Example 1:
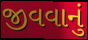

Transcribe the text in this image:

જીવવાનું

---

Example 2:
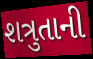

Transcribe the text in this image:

શત્રુતાની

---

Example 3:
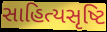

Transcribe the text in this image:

સાહિત્યસૃષ્ટિ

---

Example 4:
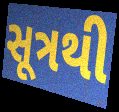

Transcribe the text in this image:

સૂત્રથી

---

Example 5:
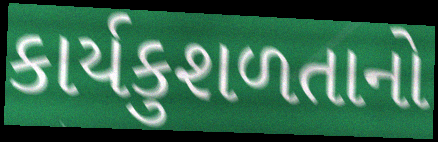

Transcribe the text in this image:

કાર્યકુશળતાનો